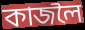
কাজলৈ